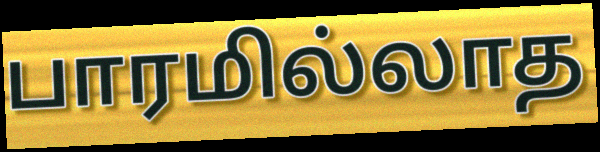
பாரமில்லாத